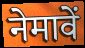
नेमावें